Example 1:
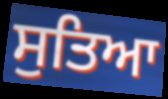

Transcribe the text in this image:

ਸੁਤਿਆ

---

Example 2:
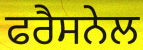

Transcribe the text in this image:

ਫਰੈਸਨੇਲ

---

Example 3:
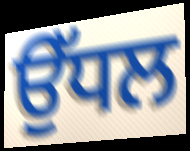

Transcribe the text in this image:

ਉੱਧਲ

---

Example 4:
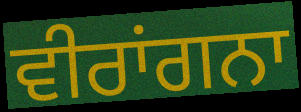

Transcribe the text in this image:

ਵੀਰਾਂਗਨਾ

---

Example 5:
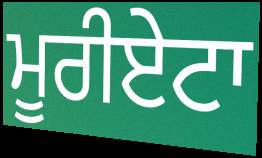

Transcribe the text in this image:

ਮੂਰੀਏਟਾ